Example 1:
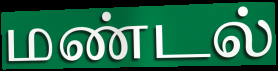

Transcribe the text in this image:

மண்டல்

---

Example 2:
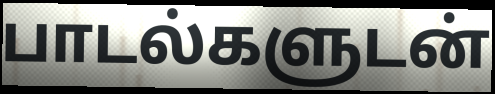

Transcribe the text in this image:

பாடல்களுடன்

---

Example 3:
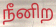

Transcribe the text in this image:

நீனிற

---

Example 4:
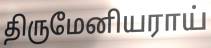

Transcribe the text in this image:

திருமேனியராய்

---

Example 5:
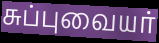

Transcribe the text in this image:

சுப்புவையர்